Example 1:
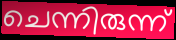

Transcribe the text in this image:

ചെന്നിരുന്ന്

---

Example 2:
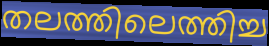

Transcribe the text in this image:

തലത്തിലെത്തിച്ച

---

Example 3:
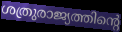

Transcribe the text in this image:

ശത്രുരാജ്യത്തിന്റെ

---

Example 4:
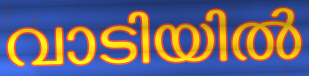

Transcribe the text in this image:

വാടിയിൽ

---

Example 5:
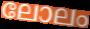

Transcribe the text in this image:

ലോലം